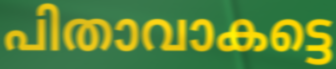
പിതാവാകട്ടെ